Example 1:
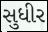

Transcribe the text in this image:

સુધીર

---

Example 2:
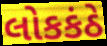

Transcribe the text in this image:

લોકકંઠે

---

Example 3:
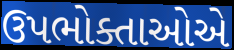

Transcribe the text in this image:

ઉપભોક્તાઓએ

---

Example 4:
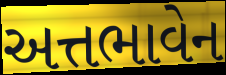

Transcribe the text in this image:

અત્તભાવેન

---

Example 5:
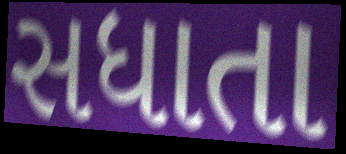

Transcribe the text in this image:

સધાતા